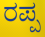
ರಪ್ಪ